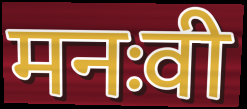
मनःवी